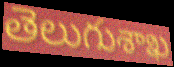
తెలుగుశాఖ